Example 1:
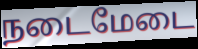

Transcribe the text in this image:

நடைமேடை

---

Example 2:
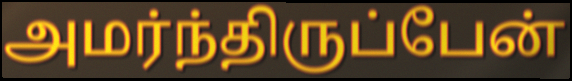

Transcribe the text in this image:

அமர்ந்திருப்பேன்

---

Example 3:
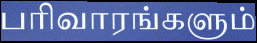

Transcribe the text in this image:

பரிவாரங்களும்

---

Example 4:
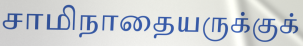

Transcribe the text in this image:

சாமிநாதையருக்குக்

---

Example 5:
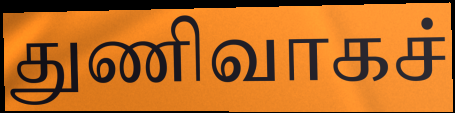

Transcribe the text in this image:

துணிவாகச்